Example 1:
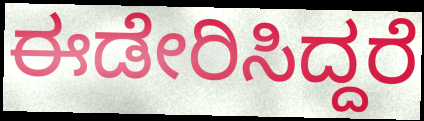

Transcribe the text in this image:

ಈಡೇರಿಸಿದ್ದರೆ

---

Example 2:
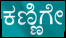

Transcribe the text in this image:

ಕಣ್ಣಿಗೇ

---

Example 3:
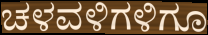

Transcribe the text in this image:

ಚಳವಳಿಗಳಿಗೂ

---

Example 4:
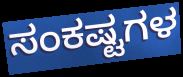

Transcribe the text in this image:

ಸಂಕಷ್ಟಗಳ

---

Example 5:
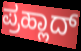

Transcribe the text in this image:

ಪ್ರಹ್ಲಾದ್